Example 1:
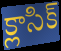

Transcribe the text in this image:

క్లాసిక్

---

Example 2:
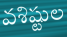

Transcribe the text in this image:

వశిష్టుల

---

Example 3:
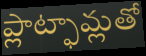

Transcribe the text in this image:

ప్లాట్ఫామ్లతో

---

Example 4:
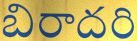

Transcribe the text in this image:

బిరాదరి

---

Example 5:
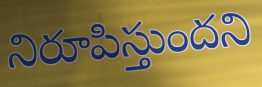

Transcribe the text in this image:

నిరూపిస్తుందని